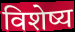
विशेष्य